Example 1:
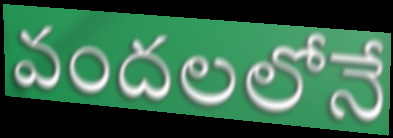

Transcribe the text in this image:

వందలలోనే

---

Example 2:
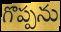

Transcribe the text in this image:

గొప్పను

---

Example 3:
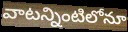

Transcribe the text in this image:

వాటన్నింటిలోనూ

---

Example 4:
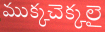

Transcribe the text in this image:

ముక్కచెక్కలై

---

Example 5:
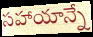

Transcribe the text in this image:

సహాయాన్నే